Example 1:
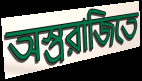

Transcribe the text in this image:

অস্ত্ররাজিতে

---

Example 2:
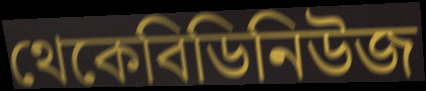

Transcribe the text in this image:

থেকেবিডিনিউজ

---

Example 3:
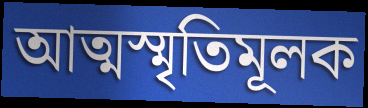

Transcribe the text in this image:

আত্মস্মৃতিমূলক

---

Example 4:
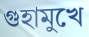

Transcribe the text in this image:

গুহামুখে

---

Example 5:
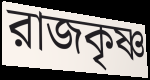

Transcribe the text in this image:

রাজকৃষ্ণ